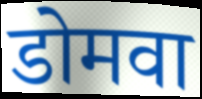
डोमवा